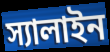
স্যালাইন